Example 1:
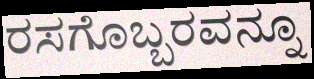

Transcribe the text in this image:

ರಸಗೊಬ್ಬರವನ್ನೂ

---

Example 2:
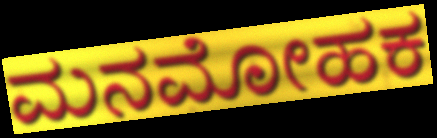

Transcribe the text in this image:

ಮನಮೋಹಕ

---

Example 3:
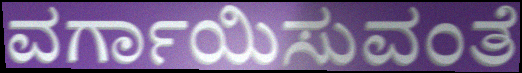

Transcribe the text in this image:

ವರ್ಗಾಯಿಸುವಂತೆ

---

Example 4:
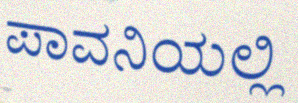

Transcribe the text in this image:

ಪಾವನಿಯಲ್ಲಿ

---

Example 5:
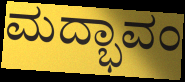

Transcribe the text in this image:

ಮದ್ಭಾವಂ